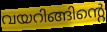
വയറിങ്ങിന്റെ